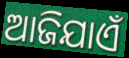
ଆଜିଯାଏଁ